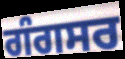
ਗੰਗਸਰ